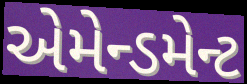
એમેન્ડમેન્ટ